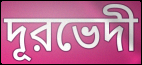
দূরভেদী